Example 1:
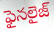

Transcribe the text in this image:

ఫైనలైజ్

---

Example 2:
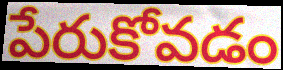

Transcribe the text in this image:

పేరుకోవడం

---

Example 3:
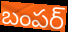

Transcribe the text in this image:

బంపర్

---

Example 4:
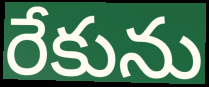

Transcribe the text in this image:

రేకును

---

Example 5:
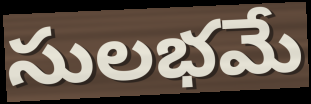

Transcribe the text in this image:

సులభమే